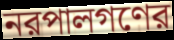
নরপালগণের